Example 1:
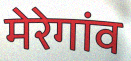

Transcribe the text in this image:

मेरेगांव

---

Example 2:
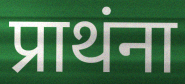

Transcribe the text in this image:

प्राथंना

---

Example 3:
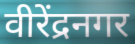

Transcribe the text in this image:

वीरेंद्रनगर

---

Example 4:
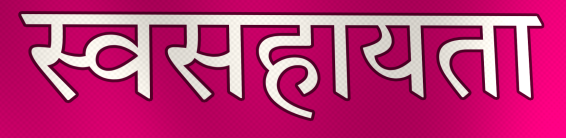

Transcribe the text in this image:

स्वसहायता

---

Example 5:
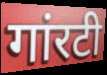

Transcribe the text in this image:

गांरटी